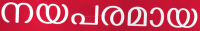
നയപരമായ